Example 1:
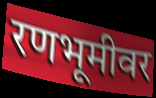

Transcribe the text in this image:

रणभूमीवर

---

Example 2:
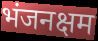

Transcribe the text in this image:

भंजनक्षम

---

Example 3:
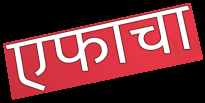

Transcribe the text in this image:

एफाचा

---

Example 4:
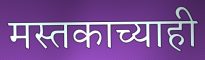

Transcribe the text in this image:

मस्तकाच्याही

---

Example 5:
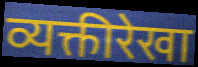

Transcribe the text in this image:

व्यक्तीरेखा